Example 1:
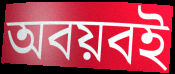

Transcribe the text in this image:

অবয়বই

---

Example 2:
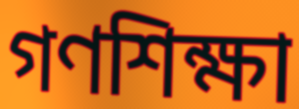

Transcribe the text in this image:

গণশিক্ষা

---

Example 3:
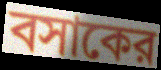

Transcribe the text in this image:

বসাকের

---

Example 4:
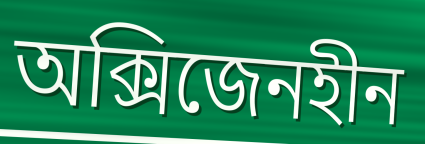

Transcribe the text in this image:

অক্সিজেনহীন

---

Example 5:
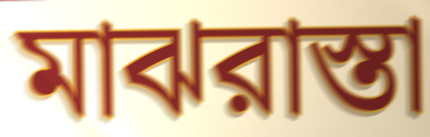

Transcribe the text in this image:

মাঝরাস্তা